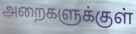
அறைகளுக்குள்